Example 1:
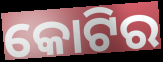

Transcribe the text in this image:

କୋଟିର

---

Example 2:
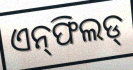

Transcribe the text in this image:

ଏନ୍‌ଫିଲଡ୍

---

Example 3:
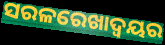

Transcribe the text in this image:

ସରଳରେଖାଦ୍ବୟର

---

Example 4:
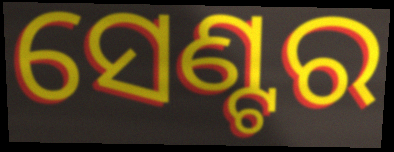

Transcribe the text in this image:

ସେଣ୍ଟର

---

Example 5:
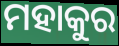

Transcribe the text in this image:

ମହାକୁର